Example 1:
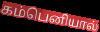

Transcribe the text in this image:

கம்பெனியால்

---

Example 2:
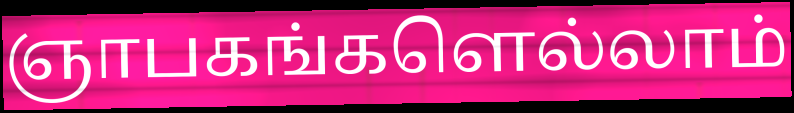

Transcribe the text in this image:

ஞாபகங்களெல்லாம்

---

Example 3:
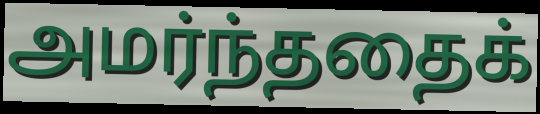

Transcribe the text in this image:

அமர்ந்ததைக்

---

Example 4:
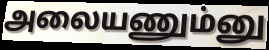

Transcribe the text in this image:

அலையணும்னு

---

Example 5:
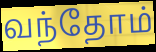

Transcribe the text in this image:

வந்தோம்